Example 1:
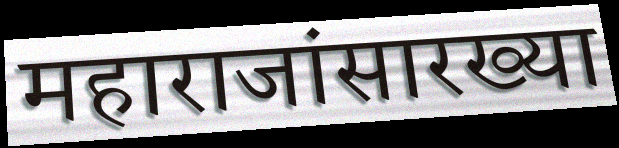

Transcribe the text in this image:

महाराजांसारख्या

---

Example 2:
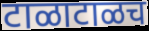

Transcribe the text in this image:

टाळाटाळच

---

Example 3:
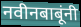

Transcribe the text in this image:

नवीनबाबूंनी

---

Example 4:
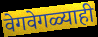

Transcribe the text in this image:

वेगवेगळ्याही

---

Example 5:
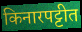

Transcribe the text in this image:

किनारपट्टीत